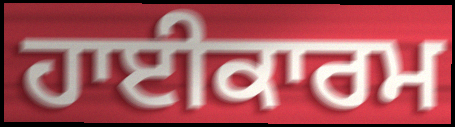
ਹਾਈਕਾਰਮ